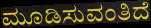
ಮೂಡಿಸುವಂತಿದೆ